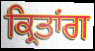
ਕ੍ਰਿਤਾਂਗ